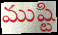
ముష్టి